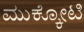
ಮುಕ್ಕೋಟಿ